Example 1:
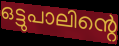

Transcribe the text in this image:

ഒട്ടുപാലിന്റെ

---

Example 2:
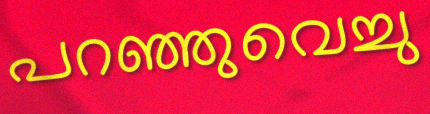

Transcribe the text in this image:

പറഞ്ഞുവെച്ചു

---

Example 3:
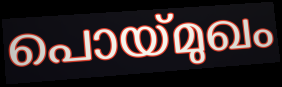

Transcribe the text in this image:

പൊയ്മുഖം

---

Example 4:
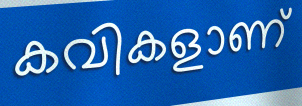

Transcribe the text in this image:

കവികളാണ്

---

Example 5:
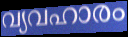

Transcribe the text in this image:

വ്യവഹാരം